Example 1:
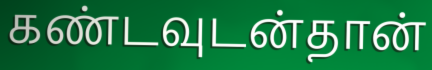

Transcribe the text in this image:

கண்டவுடன்தான்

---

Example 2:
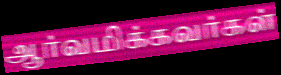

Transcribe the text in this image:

ஆர்வமிக்கவர்கள்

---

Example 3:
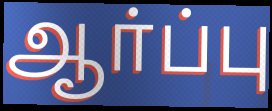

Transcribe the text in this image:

ஆர்ப்பு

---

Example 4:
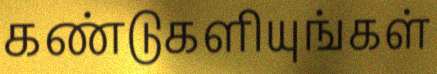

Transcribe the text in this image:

கண்டுகளியுங்கள்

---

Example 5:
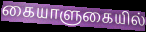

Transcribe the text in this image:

கையாளுகையில்